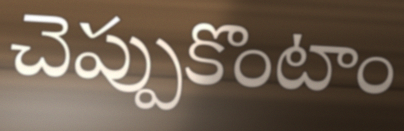
చెప్పుకొంటాం